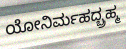
ಯೋನಿರ್ಮಹದ್ಬ್ರಹ್ಮ